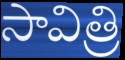
సావిత్రి